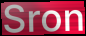
Sron